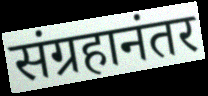
संग्रहानंतर